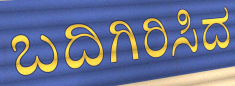
ಬದಿಗಿರಿಸಿದ